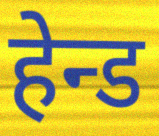
हेन्ड